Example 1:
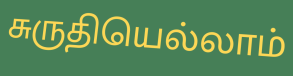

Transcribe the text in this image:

சுருதியெல்லாம்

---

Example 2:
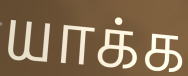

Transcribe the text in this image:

யாக்க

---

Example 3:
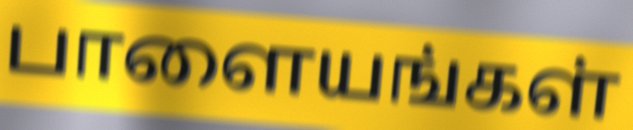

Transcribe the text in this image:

பாளையங்கள்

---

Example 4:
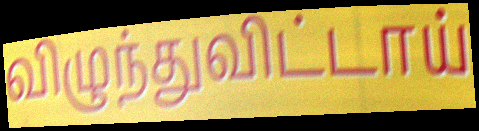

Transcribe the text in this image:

விழுந்துவிட்டாய்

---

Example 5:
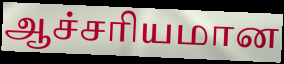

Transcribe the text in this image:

ஆச்சரியமான